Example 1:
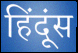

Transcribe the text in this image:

हिंदूंस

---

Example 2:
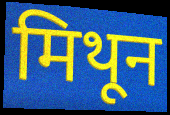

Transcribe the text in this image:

मिथून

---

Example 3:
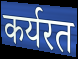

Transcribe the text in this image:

कर्यरत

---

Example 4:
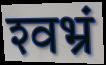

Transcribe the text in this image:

श्वभ्रं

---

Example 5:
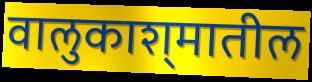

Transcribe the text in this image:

वालुकाश्मातील